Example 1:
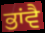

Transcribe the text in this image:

ਭਾਂਵੈ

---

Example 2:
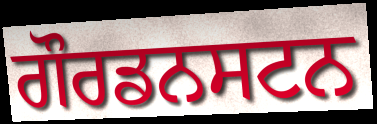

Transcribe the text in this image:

ਗੌਰਡਨਸਟਨ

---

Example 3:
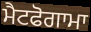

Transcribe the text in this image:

ਮੈਟਫੋਗਾਮਾ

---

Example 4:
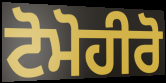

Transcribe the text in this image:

ਟੋਮੋਹੀਰੋ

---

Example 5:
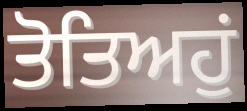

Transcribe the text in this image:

ਤੋਤਿਅਹੁਂ